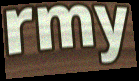
rmy